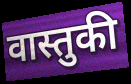
वास्तुकी